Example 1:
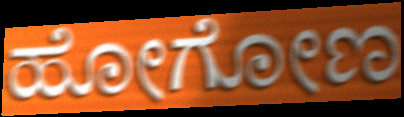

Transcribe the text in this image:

ಹೋಗೋಣ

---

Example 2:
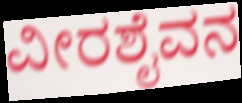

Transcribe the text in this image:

ವೀರಶೈವನ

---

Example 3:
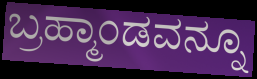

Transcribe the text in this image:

ಬ್ರಹ್ಮಾಂಡವನ್ನೂ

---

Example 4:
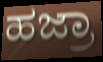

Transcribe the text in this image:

ಹಜ್ರಾ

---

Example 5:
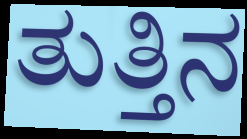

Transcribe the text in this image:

ತುತ್ತಿನ